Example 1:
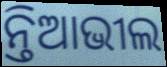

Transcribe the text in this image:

ନ୍ତିଆଭୀଲ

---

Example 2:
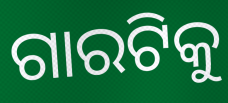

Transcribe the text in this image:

ଗାରଟିକୁ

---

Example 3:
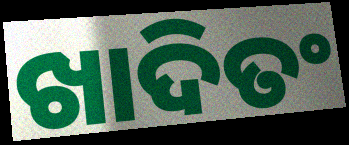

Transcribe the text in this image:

ଖାଦିତଂ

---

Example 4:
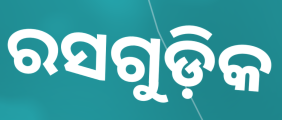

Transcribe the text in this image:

ରସଗୁଡ଼ିକ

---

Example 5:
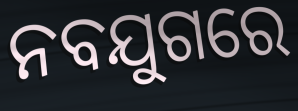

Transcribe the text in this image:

ନବଯୁଗରେ